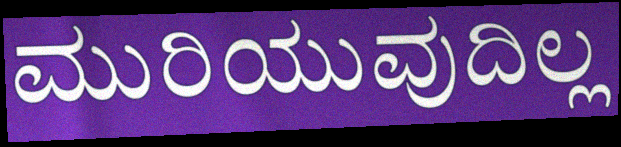
ಮುರಿಯುವುದಿಲ್ಲ